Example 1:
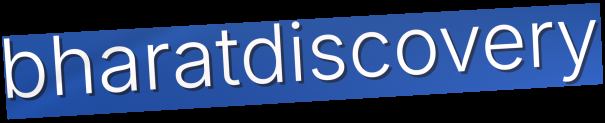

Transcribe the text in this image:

bharatdiscovery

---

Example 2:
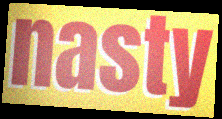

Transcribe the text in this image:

nasty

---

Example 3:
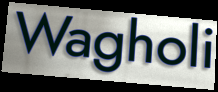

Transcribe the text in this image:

Wagholi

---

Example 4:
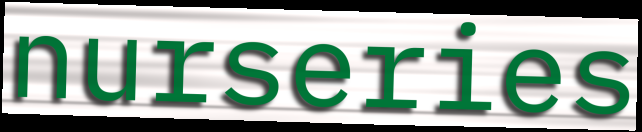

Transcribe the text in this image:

nurseries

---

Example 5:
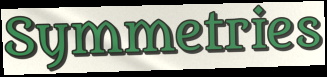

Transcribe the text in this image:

Symmetries